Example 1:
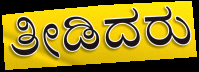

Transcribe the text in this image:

ತೀಡಿದರು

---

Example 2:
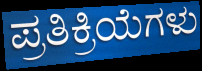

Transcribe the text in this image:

ಪ್ರತಿಕ್ರಿಯೆಗಳು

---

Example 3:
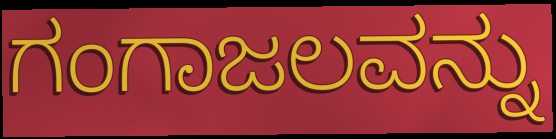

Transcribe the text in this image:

ಗಂಗಾಜಲವನ್ನು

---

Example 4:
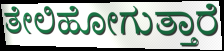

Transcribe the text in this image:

ತೇಲಿಹೋಗುತ್ತಾರೆ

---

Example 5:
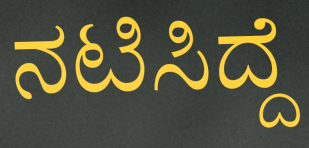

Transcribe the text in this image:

ನಟಿಸಿದ್ದೆ